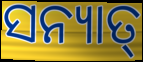
ସନ୍ୟାତ୍